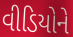
વીડિયોને